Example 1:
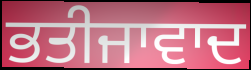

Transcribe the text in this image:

ਭਤੀਜਾਵਾਦ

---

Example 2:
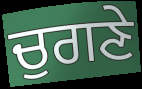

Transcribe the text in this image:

ਚੁਗਣੇ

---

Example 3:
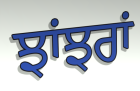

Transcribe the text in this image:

ਝਾਂਝਰਾਂ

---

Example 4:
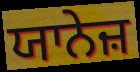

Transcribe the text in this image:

ਯਾਨੇਜ਼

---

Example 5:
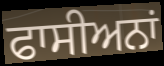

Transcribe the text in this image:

ਫਾਸੀਅਨਾਂ